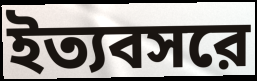
ইত্যবসরে